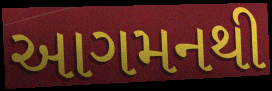
આગમનથી